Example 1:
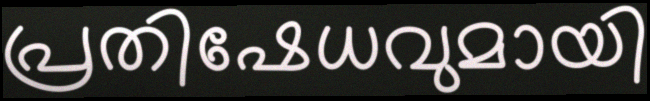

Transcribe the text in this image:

പ്രതിഷേധവുമായി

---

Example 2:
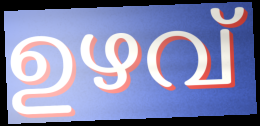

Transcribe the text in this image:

ഉഴവ്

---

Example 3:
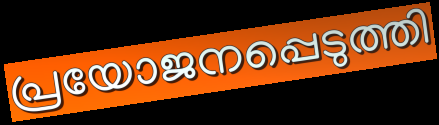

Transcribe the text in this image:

പ്രയോജനപ്പെടുത്തി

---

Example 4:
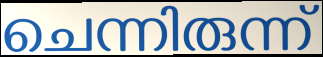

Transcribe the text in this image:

ചെന്നിരുന്ന്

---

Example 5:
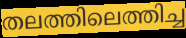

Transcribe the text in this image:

തലത്തിലെത്തിച്ച